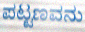
ಪಟ್ಟಣವನು